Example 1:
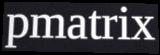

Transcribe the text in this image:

pmatrix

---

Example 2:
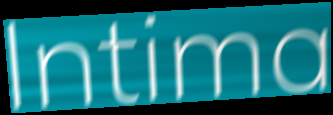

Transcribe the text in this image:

Intima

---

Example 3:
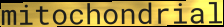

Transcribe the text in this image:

mitochondrial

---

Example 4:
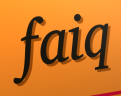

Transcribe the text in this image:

faiq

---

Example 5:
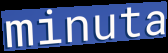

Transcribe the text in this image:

minuta